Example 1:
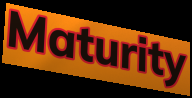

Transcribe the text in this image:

Maturity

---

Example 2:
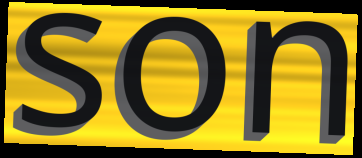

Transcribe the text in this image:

son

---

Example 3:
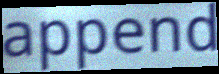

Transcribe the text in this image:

append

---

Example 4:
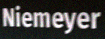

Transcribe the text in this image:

Niemeyer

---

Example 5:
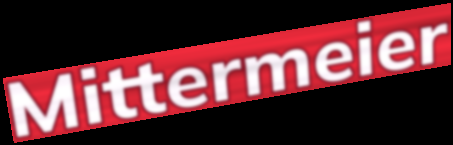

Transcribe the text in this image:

Mittermeier